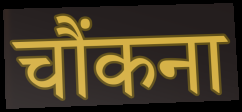
चौंकना